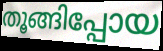
തൂങ്ങിപ്പോയ